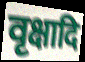
वृक्षादि